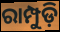
ରାମ୍ପୁଡ଼ି